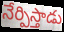
నేర్పిస్తాడు